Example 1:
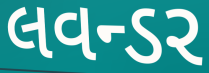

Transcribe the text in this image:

લવન્ડર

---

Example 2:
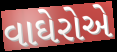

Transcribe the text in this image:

વાઘેરોએ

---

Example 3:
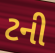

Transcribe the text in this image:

ટની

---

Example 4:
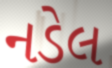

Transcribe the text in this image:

નડેલ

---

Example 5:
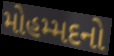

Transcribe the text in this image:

મોહમ્મદનો